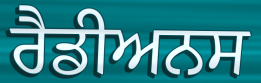
ਰੈਡੀਅਨਸ